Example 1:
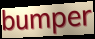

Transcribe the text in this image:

bumper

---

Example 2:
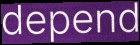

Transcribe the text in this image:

depend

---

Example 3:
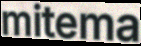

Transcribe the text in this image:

mitema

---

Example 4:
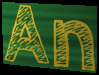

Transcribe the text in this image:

An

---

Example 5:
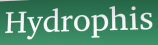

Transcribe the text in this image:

Hydrophis